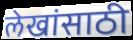
लेखांसाठी